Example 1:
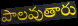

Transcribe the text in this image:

పాలవుతారు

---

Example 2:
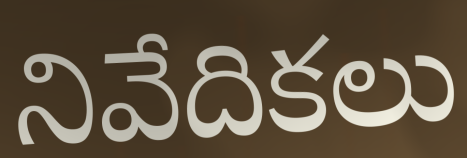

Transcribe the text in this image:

నివేదికలు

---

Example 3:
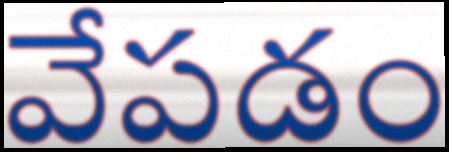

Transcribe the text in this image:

వేపడం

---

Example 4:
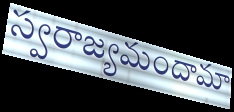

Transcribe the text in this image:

స్వరాజ్యమందామా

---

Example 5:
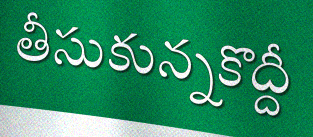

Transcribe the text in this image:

తీసుకున్నకొద్దీ